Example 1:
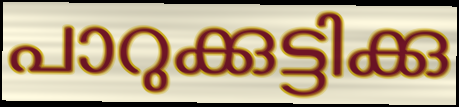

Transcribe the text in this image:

പാറുക്കുട്ടിക്കു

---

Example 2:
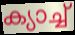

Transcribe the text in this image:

ക്യാച്ച്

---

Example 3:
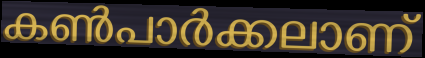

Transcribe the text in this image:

കൺപാർക്കലാണ്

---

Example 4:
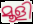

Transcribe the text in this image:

മൂളി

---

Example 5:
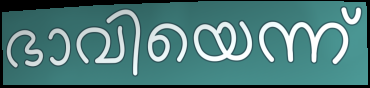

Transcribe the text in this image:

ഭാവിയെന്ന്